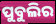
ପୁବୁଲିର